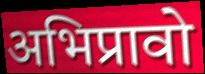
अभिप्रावो